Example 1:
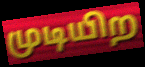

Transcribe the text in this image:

முடியிற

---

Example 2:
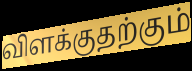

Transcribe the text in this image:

விளக்குதற்கும்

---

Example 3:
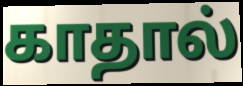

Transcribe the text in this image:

காதால்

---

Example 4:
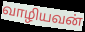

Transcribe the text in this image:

வாழியவன்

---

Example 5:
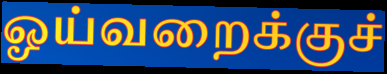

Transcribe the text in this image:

ஓய்வறைக்குச்